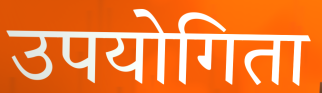
उपयोगिता